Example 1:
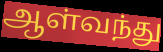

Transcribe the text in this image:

ஆள்வந்து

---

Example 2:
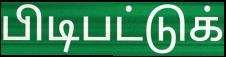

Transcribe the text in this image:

பிடிபட்டுக்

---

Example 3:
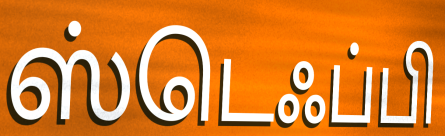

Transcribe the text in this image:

ஸ்டெஃப்பி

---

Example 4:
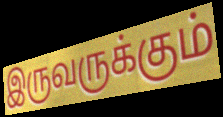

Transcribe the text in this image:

இருவருக்கும்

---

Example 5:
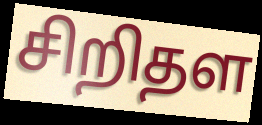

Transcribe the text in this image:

சிறிதள